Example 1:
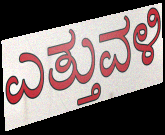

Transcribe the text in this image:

ಎತ್ತುವಳಿ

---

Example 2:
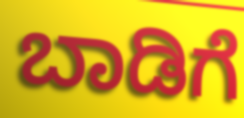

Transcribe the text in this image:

ಬಾಡಿಗೆ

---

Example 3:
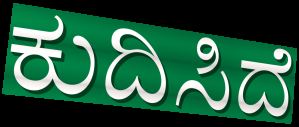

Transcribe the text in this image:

ಕುದಿಸಿದೆ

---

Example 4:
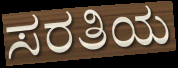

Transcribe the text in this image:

ಸರತಿಯ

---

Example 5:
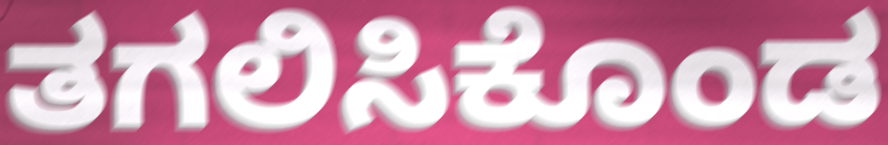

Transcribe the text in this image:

ತಗಲಿಸಿಕೊಂಡ